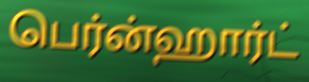
பெர்ன்ஹார்ட்